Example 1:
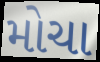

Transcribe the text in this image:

મોચા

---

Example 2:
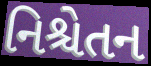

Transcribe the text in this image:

નિશ્ચેતન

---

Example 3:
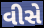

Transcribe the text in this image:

વીસે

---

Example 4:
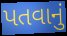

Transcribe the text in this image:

પતવાનું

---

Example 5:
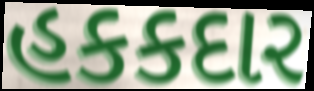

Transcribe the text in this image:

હકકદાર